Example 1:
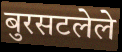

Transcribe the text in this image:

बुरसटलेले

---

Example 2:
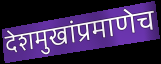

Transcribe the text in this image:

देशमुखांप्रमाणेच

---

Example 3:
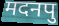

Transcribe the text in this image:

मदनपु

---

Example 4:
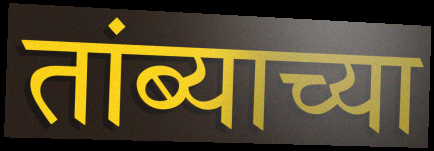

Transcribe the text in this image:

तांब्याच्या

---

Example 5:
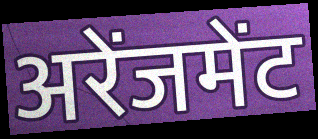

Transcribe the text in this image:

अरेंजमेंट